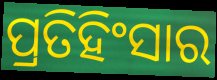
ପ୍ରତିହିଂସାର